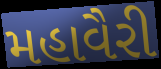
મહાવૈરી